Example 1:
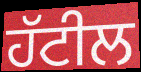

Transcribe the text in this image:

ਹੱਟੀਲ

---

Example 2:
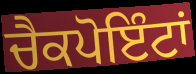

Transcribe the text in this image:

ਚੈਕਪੋਇੰਟਾਂ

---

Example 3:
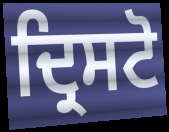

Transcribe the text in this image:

ਦ੍ਰਿਸਟੋ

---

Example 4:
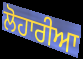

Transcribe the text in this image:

ਲੋਹਾਰੀਆ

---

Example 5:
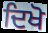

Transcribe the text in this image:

ਦਿਖੋ